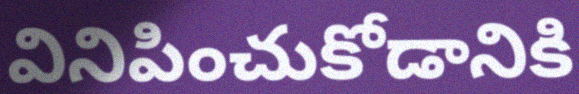
వినిపించుకోడానికి